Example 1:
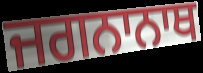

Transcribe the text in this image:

ਜਗਨਾਨਾਥ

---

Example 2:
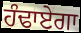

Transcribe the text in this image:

ਹੰਢਾਏਗਾ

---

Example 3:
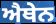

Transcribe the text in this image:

ਐਥੇਨ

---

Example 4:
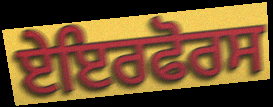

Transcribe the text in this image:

ਏਇਰਫੋਰਸ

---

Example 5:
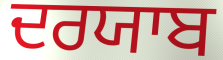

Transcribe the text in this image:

ਦਰਯਾਬ